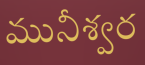
మునీశ్వర